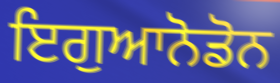
ਇਗੁਆਨੋਡੋਨ